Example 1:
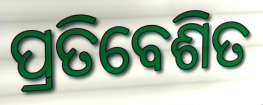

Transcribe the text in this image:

ପ୍ରତିବେଶିତ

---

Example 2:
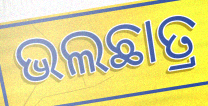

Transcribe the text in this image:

ଭଲଛାତ୍ର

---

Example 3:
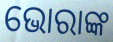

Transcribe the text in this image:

ଭୋରାଙ୍କ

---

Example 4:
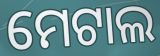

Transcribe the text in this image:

ମେଟାଲ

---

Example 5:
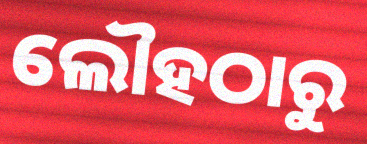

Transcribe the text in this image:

ଲୌହଠାରୁ